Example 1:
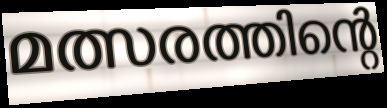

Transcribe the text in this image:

മത്സരത്തിന്റെ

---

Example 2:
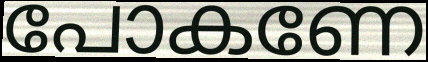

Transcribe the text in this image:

പോകണേ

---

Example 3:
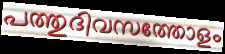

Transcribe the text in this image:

പത്തുദിവസത്തോളം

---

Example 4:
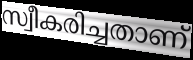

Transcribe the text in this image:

സ്വീകരിച്ചതാണ്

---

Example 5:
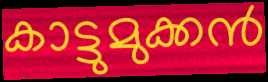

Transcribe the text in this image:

കാട്ടുമുക്കൻ